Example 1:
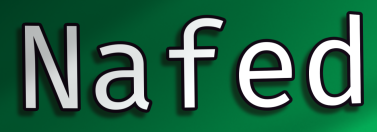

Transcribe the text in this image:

Nafed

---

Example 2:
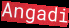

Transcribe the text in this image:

Angadi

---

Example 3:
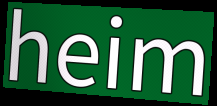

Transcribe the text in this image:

heim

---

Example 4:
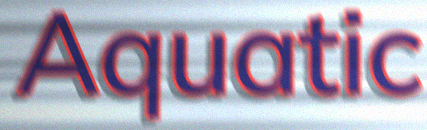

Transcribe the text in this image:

Aquatic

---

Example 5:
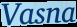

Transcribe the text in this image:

Vasna